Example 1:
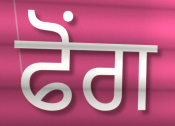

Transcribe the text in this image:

ਫੋਂਗ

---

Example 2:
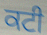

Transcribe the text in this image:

ਕਟੀ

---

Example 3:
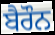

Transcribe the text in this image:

ਬੈਰੌਨ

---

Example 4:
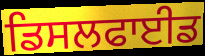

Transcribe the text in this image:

ਡਿਸਲਫਾਈਡ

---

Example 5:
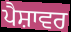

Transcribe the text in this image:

ਪੈਸ਼ਾਵਰ